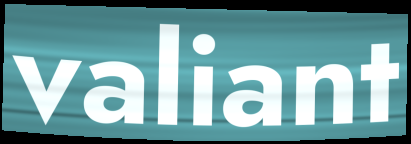
valiant